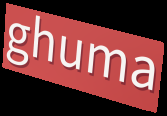
ghuma